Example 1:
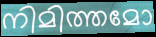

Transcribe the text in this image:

നിമിത്തമോ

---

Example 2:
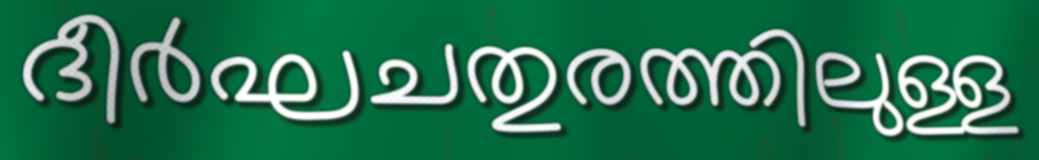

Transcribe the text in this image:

ദീർഘചതുരത്തിലുള്ള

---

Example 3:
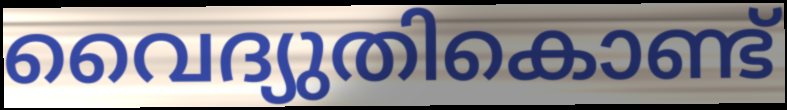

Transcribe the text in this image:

വൈദ്യുതികൊണ്ട്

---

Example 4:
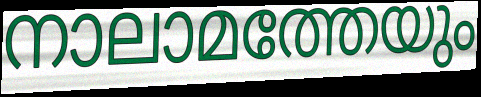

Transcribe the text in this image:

നാലാമത്തേയും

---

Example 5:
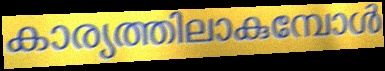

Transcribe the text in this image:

കാര്യത്തിലാകുമ്പോൾ